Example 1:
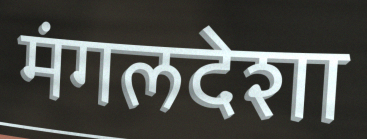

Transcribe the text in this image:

मंगलदेशा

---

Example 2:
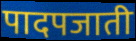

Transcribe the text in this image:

पादपजाती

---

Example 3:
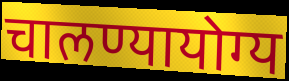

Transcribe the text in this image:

चालण्यायोग्य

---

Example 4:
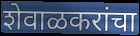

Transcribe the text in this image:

शेवाळकरांचा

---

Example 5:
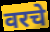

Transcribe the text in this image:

वरचे